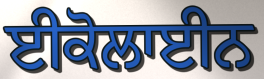
ਈਕੋਲਾਈਨ